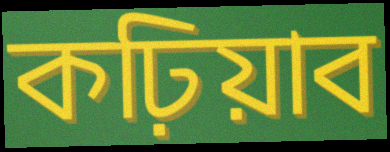
কঢ়িয়াব